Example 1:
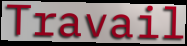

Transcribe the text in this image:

Travail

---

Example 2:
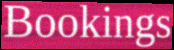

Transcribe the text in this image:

Bookings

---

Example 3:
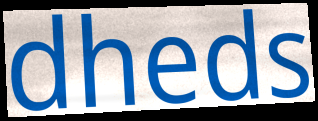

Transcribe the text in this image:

dheds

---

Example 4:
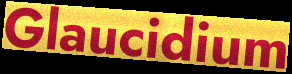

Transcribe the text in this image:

Glaucidium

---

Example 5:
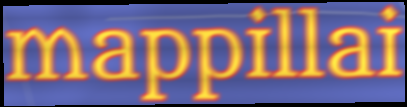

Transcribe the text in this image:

mappillai